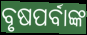
ବୃଷପର୍ବାଙ୍କ